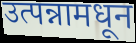
उत्पन्नामधून